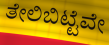
ತೇಲಿಬಿಟ್ಟೆವೇ